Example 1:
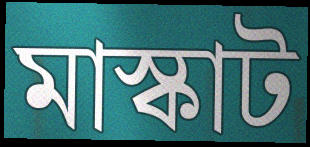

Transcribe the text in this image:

মাস্কাট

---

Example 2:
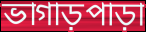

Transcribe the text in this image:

ভাগাড়পাড়া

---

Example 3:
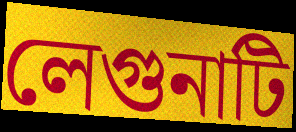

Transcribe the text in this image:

লেগুনাটি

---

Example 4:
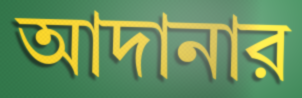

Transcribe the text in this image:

আদানার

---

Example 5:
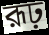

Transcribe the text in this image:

রূঢ়